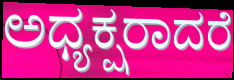
ಅಧ್ಯಕ್ಷರಾದರೆ